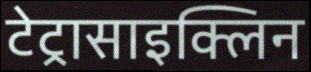
टेट्रासाइक्लिन